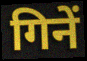
गिनें